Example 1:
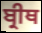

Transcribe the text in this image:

ਬ੍ਰੀਥ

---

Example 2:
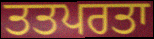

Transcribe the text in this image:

ਤਤਪਰਤਾ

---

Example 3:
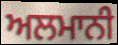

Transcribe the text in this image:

ਅਲਮਾਨੀ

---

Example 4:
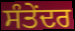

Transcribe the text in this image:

ਸੰਤੇਂਦਰ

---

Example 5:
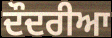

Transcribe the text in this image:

ਦੌਦਰੀਆ